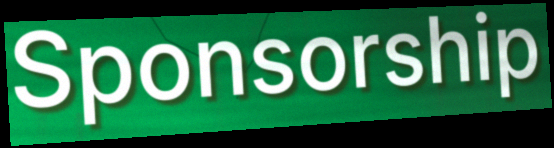
Sponsorship